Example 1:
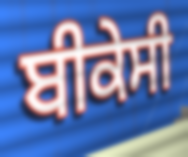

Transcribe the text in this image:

ਬੀਕੇਸੀ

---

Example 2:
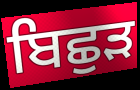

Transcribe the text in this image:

ਬਿਛੁੜ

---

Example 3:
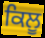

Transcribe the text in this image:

ਕਿਲੂ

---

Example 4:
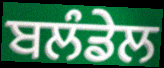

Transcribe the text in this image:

ਬਲੰਡੇਲ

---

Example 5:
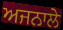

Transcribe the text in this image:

ਅਜਨਾਲੇ